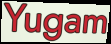
Yugam